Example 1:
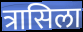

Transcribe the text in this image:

त्रासिला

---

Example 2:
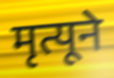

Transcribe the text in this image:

मृत्यूने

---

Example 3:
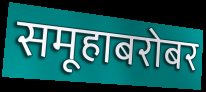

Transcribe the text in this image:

समूहाबरोबर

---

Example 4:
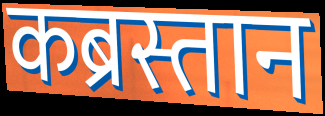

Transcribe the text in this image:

कब्रस्तान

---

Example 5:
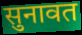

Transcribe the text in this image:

सुनावत